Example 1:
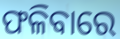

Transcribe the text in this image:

ଫଳିବାରେ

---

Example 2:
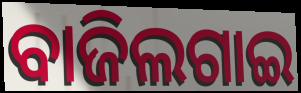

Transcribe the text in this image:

ବାଜିଲଗାଇ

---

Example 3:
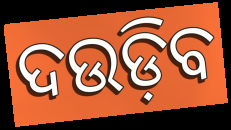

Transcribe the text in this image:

ଦଉଡ଼ିବ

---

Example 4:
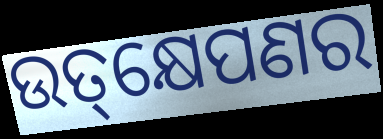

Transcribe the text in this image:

ଉତ୍‌କ୍ଷେପଣର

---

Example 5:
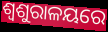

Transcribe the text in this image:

ଶ୍ଵଶୁରାଳୟରେ